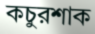
কচুরশাক